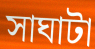
সাঘাটা